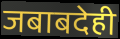
जबाबदेही